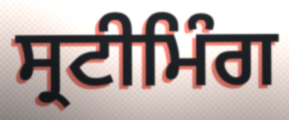
ਸ੍ਰਟੀਮਿੰਗ